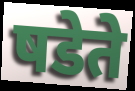
षडेते